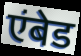
एंबेड